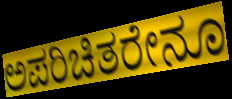
ಅಪರಿಚಿತರೇನೂ